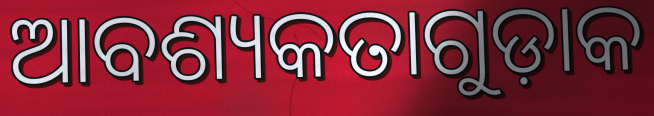
ଆବଶ୍ୟକତାଗୁଡ଼ାକ